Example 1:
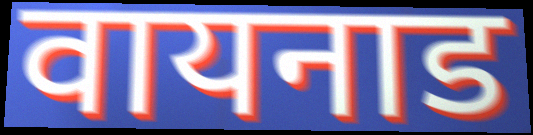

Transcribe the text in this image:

वायनाड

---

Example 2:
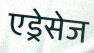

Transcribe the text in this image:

एड्रेसेज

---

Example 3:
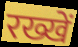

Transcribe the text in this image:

रख्खें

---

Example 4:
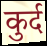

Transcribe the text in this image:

कुर्द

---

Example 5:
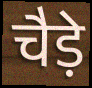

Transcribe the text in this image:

चैड़े